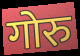
गोरु